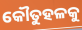
କୌତୁହଳକୁ